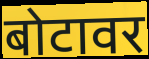
बोटावर